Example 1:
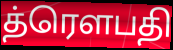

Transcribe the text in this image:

த்ரௌபதி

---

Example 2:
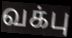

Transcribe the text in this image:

வக்பு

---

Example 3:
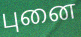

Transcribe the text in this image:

புனை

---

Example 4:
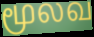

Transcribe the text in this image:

மூலவ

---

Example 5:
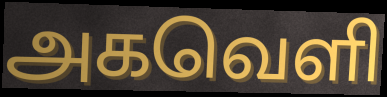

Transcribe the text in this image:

அகவெளி